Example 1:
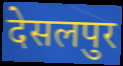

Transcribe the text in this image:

देसलपुर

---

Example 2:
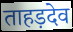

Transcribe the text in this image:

ताहड़देव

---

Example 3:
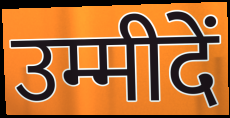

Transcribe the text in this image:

उम्‍मीदें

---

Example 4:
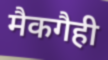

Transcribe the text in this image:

मैकगैही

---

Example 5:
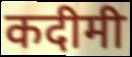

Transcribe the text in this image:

कदीमी